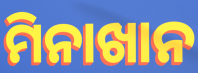
ମିନାଖାନ